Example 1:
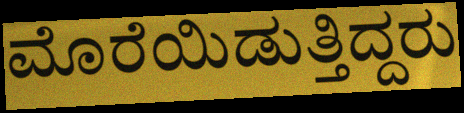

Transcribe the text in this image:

ಮೊರೆಯಿಡುತ್ತಿದ್ದರು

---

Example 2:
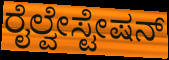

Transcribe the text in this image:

ರೈಲ್ವೇಸ್ಟೇಷನ್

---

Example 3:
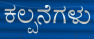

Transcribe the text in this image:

ಕಲ್ಪನೆಗಳು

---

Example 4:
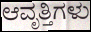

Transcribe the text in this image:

ಆವೃತ್ತಿಗಳು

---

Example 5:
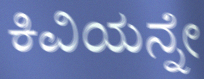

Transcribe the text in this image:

ಕಿವಿಯನ್ನೇ